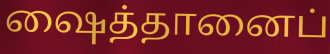
ஷைத்தானைப்